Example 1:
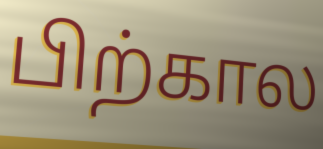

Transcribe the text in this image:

பிற்கால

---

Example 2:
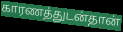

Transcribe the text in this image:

காரணத்துடன்தான்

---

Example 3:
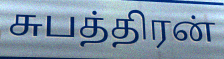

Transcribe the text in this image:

சுபத்திரன்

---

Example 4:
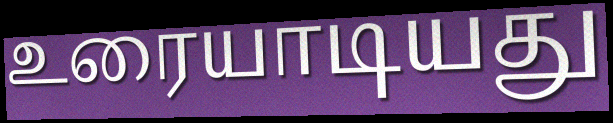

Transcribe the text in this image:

உரையாடியது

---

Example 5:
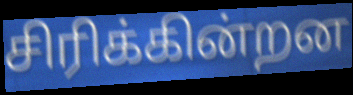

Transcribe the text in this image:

சிரிக்கின்றன